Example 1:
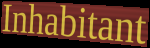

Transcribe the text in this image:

Inhabitant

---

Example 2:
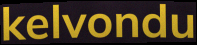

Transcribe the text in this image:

kelvondu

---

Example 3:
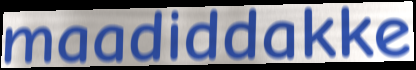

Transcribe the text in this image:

maadiddakke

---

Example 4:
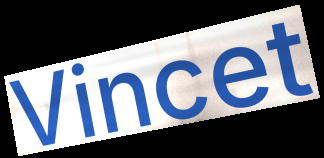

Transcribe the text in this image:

Vincet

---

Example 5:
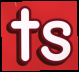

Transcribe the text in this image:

ts